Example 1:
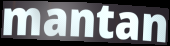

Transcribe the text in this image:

mantan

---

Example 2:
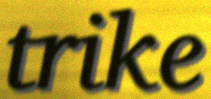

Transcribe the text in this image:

trike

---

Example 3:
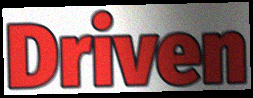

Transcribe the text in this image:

Driven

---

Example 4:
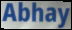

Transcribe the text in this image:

Abhay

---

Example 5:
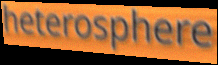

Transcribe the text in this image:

heterosphere